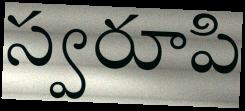
స్వరూపి